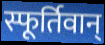
स्फूर्तिवान्